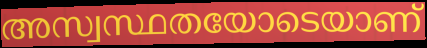
അസ്വസ്ഥതയോടെയാണ്